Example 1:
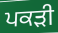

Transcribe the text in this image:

ਪਕੜੀ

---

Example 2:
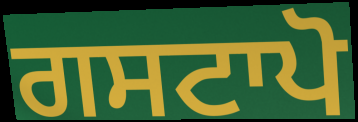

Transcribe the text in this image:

ਗਸਟਾਪੋ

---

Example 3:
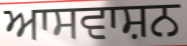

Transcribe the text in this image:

ਆਸਵਾਸ਼ਨ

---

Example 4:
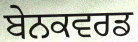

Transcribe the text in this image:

ਬੇਨਕਵਰਡ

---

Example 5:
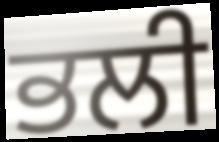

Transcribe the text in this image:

ਭਲੀ